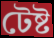
টেষ্ট